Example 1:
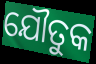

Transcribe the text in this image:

ଯୌତୁକ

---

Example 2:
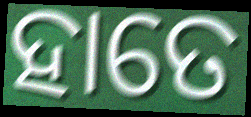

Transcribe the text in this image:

ହାତେ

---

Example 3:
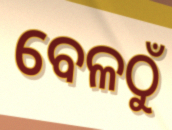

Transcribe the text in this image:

ବେଳଠୁଁ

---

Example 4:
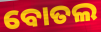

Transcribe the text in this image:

ବୋତଲ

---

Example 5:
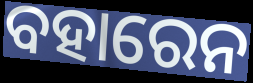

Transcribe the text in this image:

ବହାରେନ